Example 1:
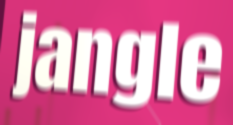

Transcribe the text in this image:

jangle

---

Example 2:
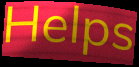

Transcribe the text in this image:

Helps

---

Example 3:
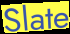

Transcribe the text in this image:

Slate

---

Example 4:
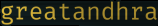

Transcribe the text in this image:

greatandhra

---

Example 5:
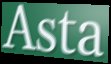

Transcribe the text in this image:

Asta